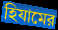
হিযামের